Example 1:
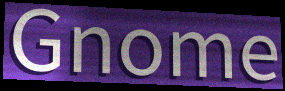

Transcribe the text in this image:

Gnome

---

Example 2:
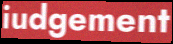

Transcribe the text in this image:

iudgement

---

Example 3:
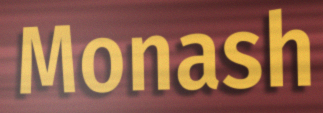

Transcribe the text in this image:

Monash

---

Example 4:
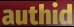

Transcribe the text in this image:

authid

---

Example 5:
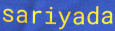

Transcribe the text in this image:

sariyada